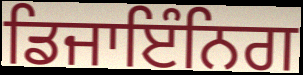
ਡਿਜਾਇੰਨਿਗ